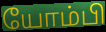
யோம்பி